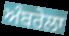
ਅੰਬਰੇਲਾ